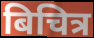
बिचित्र